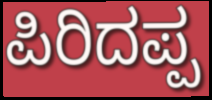
ಪಿರಿದಪ್ಪ